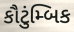
કૌટુંમ્બિક